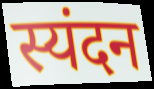
स्यंदन